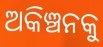
ଅକିଞ୍ଚନକୁ